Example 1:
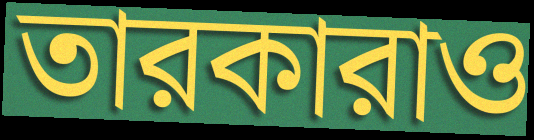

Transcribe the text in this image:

তারকারাও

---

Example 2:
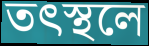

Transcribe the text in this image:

তৎস্থলে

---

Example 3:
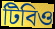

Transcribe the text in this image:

টিবিও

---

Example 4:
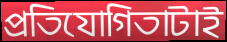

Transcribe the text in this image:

প্রতিযোগিতাটাই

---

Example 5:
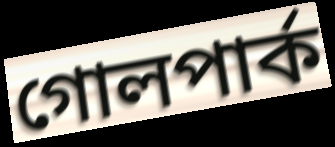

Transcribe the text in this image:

গোলপার্ক